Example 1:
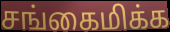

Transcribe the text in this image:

சங்கைமிக்க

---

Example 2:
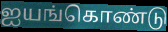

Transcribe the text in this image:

ஐயங்கொண்டு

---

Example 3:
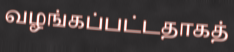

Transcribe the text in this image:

வழங்கப்பட்டதாகத்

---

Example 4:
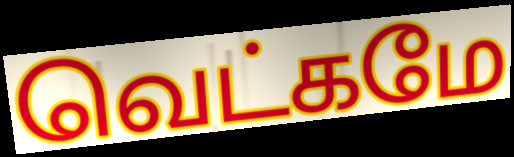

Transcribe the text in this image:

வெட்கமே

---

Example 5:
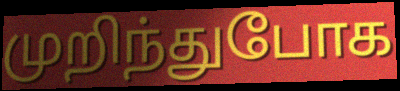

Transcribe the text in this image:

முறிந்துபோக